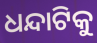
ଧନ୍ଦାଟିକୁ